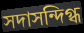
সদাসন্দিগ্ধ